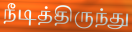
நீடித்திருந்து